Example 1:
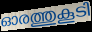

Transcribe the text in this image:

ഓരത്തുകൂടി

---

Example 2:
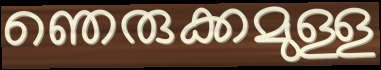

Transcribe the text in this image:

ഞെരുക്കമുള്ള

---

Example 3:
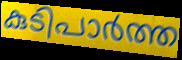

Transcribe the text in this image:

കുടിപാർത്ത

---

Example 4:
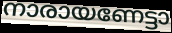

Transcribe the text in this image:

നാരായണേട്ടാ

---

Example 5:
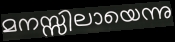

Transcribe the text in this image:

മനസ്സിലായെന്നു